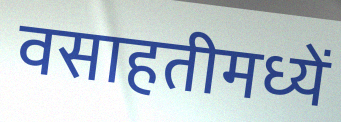
वसाहतीमध्यें